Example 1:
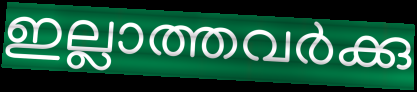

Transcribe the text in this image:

ഇല്ലാത്തവർക്കു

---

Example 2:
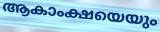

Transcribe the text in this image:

ആകാംക്ഷയെയും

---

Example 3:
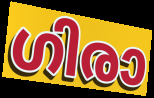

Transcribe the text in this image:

ഗിരാ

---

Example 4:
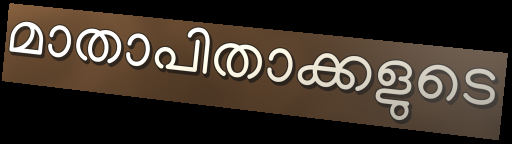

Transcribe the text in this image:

മാതാപിതാക്കളുടെ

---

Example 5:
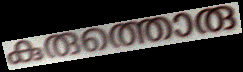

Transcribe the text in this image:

കുരുത്തൊരു